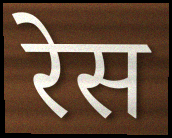
रेस